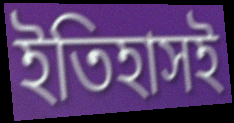
ইতিহাসই